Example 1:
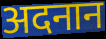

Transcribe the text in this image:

अदनान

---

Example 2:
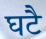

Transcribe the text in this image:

घटै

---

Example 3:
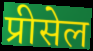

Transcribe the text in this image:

प्रीसेल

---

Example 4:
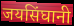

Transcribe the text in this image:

जयसिंघानी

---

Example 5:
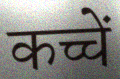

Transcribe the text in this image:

कच्चें